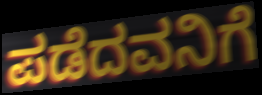
ಪಡೆದವನಿಗೆ